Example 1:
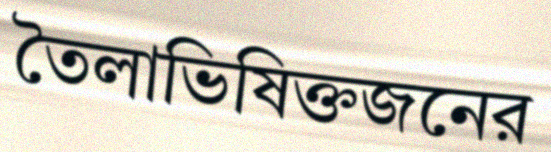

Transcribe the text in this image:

তৈলাভিষিক্তজনের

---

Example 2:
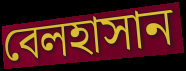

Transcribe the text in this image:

বেলহাসান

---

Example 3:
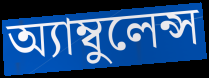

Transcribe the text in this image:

অ্যাম্বুলেন্স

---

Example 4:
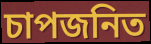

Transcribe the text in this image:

চাপজনিত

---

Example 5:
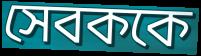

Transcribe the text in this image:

সেবককে